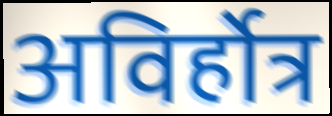
अविर्होत्र